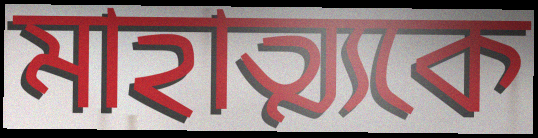
মাহাত্ম্যকে